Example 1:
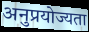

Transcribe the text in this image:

अनुप्रयोज्यता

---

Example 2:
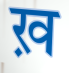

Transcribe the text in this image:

ख़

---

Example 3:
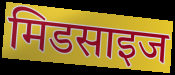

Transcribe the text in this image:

मिडसाइज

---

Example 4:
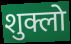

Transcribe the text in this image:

शुक्लो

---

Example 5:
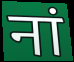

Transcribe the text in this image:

नां